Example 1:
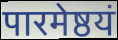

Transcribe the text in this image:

पारमेष्ठयं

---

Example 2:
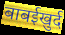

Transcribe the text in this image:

बाबईखुर्द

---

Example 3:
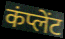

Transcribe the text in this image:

कंप्लेंट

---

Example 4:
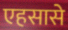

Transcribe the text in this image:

एहसासे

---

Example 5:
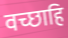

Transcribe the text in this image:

वच्छाहि